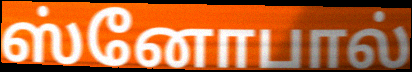
ஸ்னோபால்